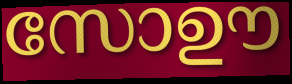
സോഊ